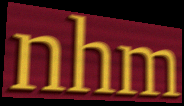
nhm